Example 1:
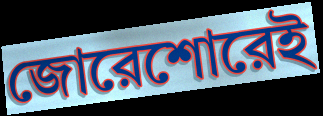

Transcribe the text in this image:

জোরেশোরেই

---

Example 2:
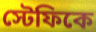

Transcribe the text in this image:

স্টেফিকে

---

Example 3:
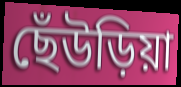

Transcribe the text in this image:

ছেঁউড়িয়া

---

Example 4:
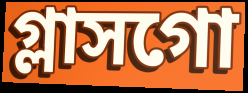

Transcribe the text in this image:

গ্লাসগো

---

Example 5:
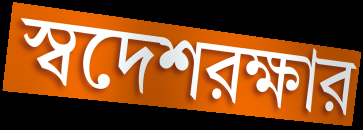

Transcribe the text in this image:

স্বদেশরক্ষার